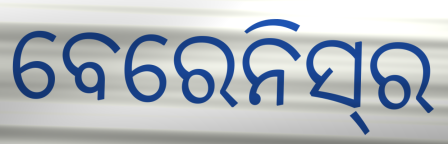
ବେରେନିସ୍‌ର